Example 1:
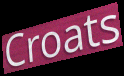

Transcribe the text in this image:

Croats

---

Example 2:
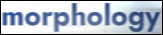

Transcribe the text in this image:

morphology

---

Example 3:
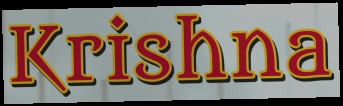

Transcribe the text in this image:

Krishna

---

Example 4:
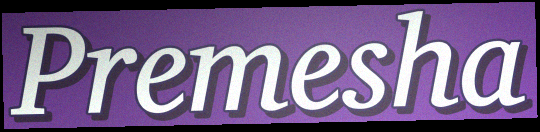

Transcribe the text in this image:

Premesha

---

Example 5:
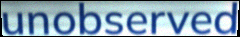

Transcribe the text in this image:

unobserved